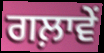
ਗਲ਼ਾਵੇਂ